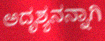
ಅದೃಶ್ಯನನ್ನಾಗಿ